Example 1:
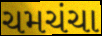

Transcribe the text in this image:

ચમચંચા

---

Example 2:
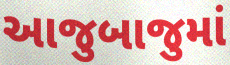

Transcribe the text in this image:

આજુબાજુમાં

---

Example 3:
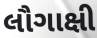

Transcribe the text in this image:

લૌગાક્ષી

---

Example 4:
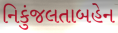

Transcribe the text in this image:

નિકુંજલતાબહેન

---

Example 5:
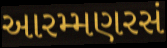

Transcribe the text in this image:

આરમ્મણરસં